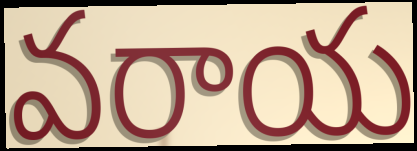
వరాయ